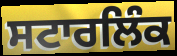
ਸਟਾਰਲਿੰਕ